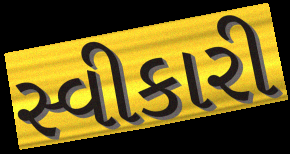
સ્વીકારી